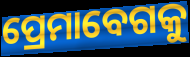
ପ୍ରେମାବେଗକୁ